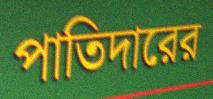
পাতিদারের